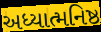
અધ્યાત્મનિષ્ઠ